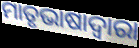
ମାତୃଭାଷାଦ୍ୱାରା